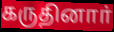
கருதினார்